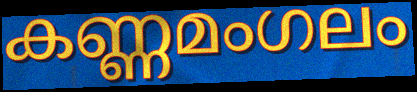
കണ്ണമംഗലം